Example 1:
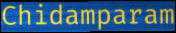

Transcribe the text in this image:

Chidamparam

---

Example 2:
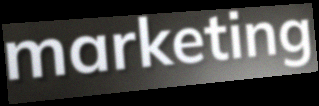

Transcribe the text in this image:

marketing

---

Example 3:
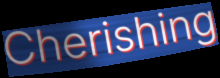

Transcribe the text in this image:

Cherishing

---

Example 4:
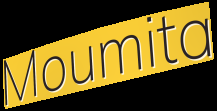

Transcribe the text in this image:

Moumita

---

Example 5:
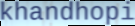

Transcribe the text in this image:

khandhopi